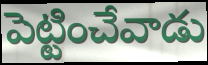
పెట్టించేవాడు